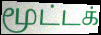
மூட்டக்